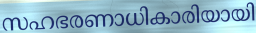
സഹഭരണാധികാരിയായി